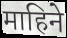
माहिने